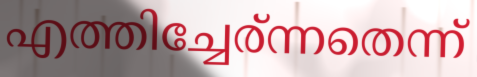
എത്തിച്ചേര്ന്നതെന്ന്